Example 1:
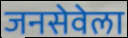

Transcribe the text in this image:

जनसेवेला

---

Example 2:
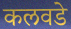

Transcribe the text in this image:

कलवडे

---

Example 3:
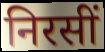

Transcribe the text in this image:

निरसीं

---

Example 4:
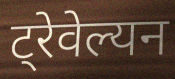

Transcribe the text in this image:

ट्रेवेल्यन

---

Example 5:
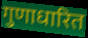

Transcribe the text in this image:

गुणाधारित